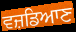
ਵਜ਼ਡਿਆਣ